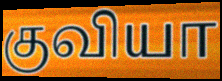
குவியா